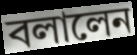
বলালেন